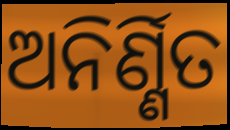
ଅନିର୍ଣ୍ଣିତ